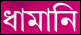
ধামানি